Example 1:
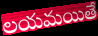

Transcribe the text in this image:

లయమయితే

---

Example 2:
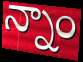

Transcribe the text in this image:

న్నాం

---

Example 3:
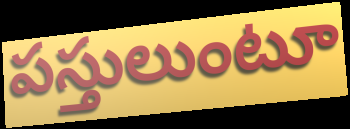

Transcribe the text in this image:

పస్తులుంటూ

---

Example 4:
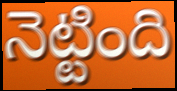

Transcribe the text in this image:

నెట్టింది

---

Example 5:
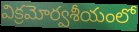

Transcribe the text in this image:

విక్రమోర్వశీయంలో